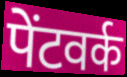
पेंटवर्क